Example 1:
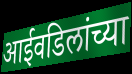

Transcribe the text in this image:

आईवडिलांच्या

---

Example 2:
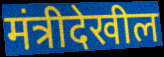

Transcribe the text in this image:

मंत्रीदेखील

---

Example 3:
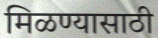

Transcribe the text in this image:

मिळण्‍यासाठी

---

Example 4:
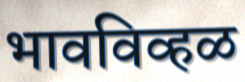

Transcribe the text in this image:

भावविव्हळ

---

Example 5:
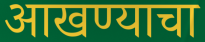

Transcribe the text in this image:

आखण्याचा